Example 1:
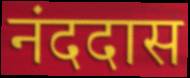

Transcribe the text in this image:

नंददास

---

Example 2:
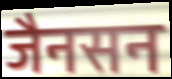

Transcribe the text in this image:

जैनसन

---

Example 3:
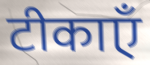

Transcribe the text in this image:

टीकाएँ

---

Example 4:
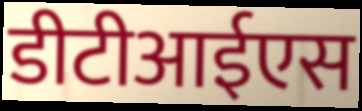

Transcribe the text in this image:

डीटीआईएस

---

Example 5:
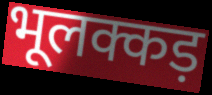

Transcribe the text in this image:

भूलक्कड़